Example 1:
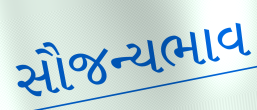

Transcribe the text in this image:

સૌજન્યભાવ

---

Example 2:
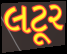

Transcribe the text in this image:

લટૂર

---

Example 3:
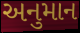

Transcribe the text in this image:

અનુમાન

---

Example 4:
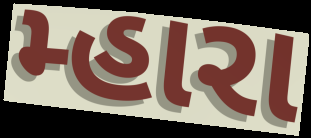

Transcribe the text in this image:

મ્હારા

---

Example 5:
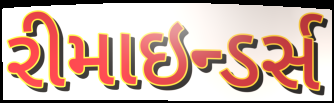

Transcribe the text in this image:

રીમાઇન્ડર્સ